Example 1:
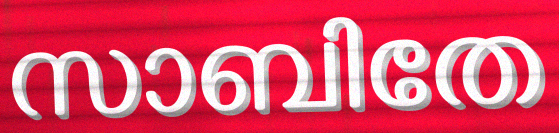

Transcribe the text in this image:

സാബിതേ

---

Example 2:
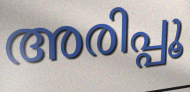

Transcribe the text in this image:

അരിപ്പൂ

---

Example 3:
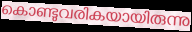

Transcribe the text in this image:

കൊണ്ടുവരികയായിരുന്നു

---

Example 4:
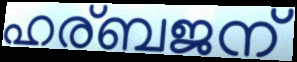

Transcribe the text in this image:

ഹര്ബജന്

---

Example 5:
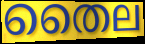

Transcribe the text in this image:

തൈല